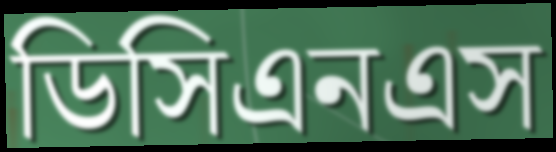
ডিসিএনএস